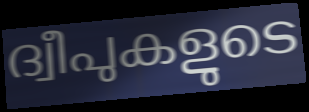
ദ്വീപുകളുടെ